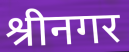
श्रीनगर